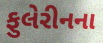
ફુલેરીનના